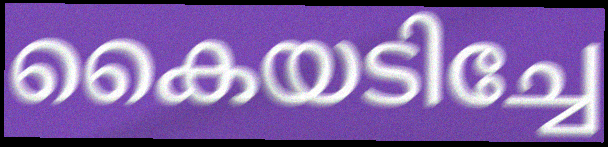
കൈയടിച്ചേ